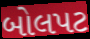
બોલપટ